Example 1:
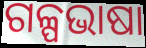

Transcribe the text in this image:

ଗଳ୍ପଭାଷା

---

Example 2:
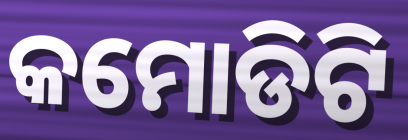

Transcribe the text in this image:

କମୋଡିଟି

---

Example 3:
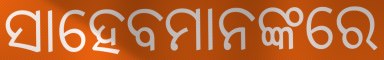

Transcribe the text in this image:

ସାହେବମାନଙ୍କରେ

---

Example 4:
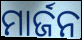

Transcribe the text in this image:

ମାର୍ଜନ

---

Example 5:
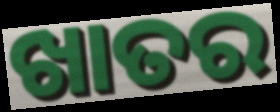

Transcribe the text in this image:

ଖାତର